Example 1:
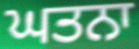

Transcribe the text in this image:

ਘਤਨਾ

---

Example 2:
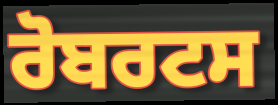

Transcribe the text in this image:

ਰੋਬਰਟਸ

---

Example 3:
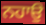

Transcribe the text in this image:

ਨਹਾਉ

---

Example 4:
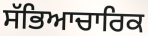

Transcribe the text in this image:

ਸੱਭਿਆਚਾਰਿਕ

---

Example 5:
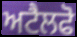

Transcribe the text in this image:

ਅਟੈਲਫੋ